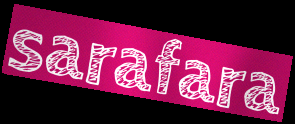
sarafara